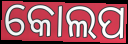
କୋଲପ